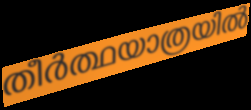
തീർത്ഥയാത്രയിൽ